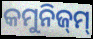
କମୁନିଜ୍‌ମ୍